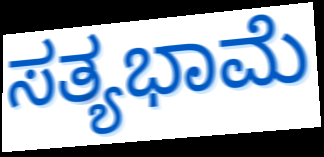
ಸತ್ಯಭಾಮೆ